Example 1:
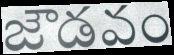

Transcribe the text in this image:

జౌడవం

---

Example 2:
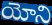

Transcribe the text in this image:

యోని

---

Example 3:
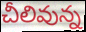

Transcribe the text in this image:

చీలివున్న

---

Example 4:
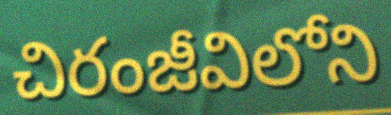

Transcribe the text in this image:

చిరంజీవిలోని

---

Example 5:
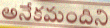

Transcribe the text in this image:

అనేకమందిని